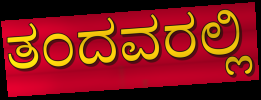
ತಂದವರಲ್ಲಿ